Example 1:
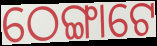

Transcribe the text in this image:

ଠେଙ୍ଗାଟେ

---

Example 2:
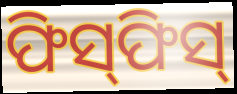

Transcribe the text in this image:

ଫିସ୍‍ଫିସ୍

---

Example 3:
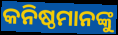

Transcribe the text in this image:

କନିଷ୍ଠମାନଙ୍କୁ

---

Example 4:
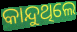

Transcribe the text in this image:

କାନ୍ଦୁଥିଲେ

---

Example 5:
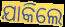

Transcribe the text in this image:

ଯାକିଲେ